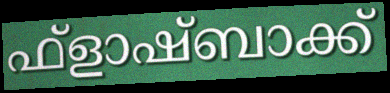
ഫ്ളാഷ്ബാക്ക്